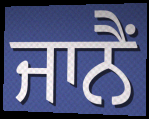
ਜਾਨੈਂ